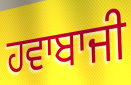
ਹਵਾਬਾਜੀ